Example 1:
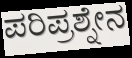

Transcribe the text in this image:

ಪರಿಪ್ರಶ್ನೇನ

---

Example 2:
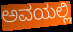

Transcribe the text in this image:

ಅವಯಲ್ಲಿ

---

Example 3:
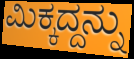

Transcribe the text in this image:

ಮಿಕ್ಕದ್ದನ್ನು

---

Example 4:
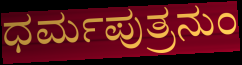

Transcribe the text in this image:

ಧರ್ಮಪುತ್ರನುಂ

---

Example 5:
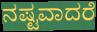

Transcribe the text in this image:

ನಷ್ಟವಾದರೆ